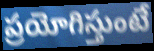
ప్రయోగిస్తుంటే